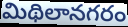
మిథిలానగరం